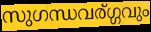
സുഗന്ധവര്ഗ്ഗവും